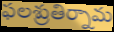
ఫలశ్రుతిర్నామ